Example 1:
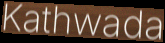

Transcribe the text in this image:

Kathwada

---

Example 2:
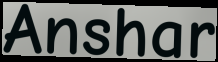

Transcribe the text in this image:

Anshar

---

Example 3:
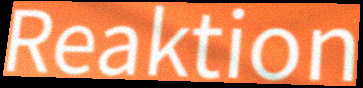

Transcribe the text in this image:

Reaktion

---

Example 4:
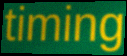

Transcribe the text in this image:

timing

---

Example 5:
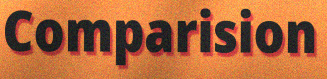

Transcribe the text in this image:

Comparision